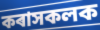
কৰাসকলক